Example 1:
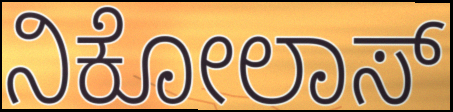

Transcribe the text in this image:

ನಿಕೋಲಾಸ್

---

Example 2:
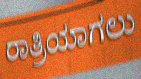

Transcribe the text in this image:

ರಾತ್ರಿಯಾಗಲು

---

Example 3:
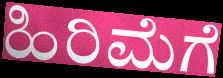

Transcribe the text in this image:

ಹಿರಿಮೆಗೆ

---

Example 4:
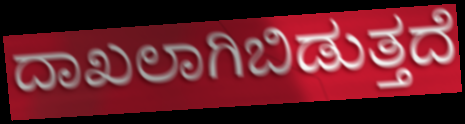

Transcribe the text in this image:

ದಾಖಲಾಗಿಬಿಡುತ್ತದೆ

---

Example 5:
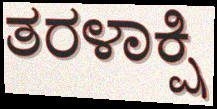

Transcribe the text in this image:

ತರಳಾಕ್ಷಿ